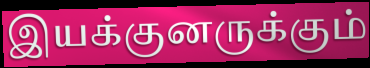
இயக்குனருக்கும்